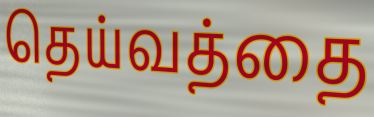
தெய்வத்தை